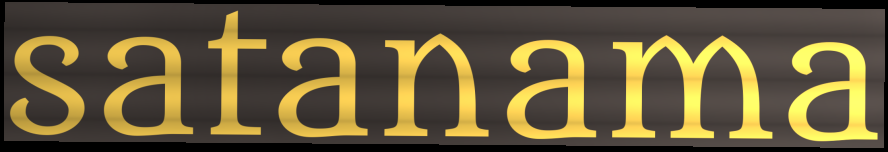
satanama